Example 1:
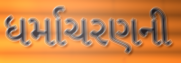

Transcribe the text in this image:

ધર્માચરણની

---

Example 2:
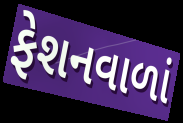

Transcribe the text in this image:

ફેશનવાળાં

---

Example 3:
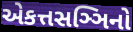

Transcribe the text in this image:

એકત્તસઞ્ઞિનો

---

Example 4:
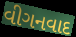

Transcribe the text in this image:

વીગનવાદ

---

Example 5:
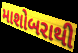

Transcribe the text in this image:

માશોબરાથી